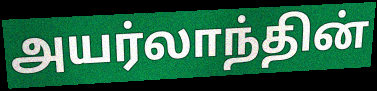
அயர்லாந்தின்